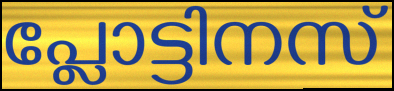
പ്ലോട്ടിനസ്